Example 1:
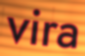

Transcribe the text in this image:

vira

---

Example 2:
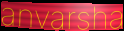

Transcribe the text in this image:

anvarsha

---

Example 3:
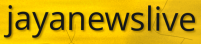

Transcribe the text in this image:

jayanewslive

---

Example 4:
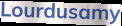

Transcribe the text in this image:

Lourdusamy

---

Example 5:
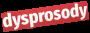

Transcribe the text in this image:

dysprosody